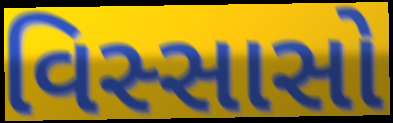
વિસ્સાસો